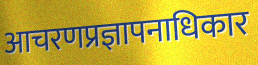
आचरणप्रज्ञापनाधिकार